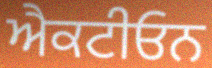
ਐਕਟੀਓਨ